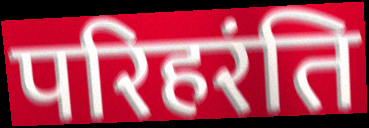
परिहरंति